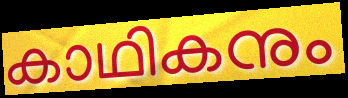
കാഥികനും